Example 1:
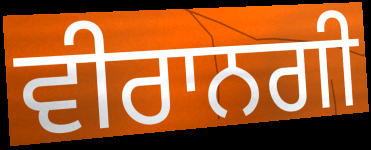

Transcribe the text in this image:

ਵੀਰਾਨਗੀ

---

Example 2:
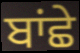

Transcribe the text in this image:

ਬਾਂਛੇ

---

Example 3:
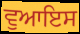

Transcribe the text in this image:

ਵੁਆਇਸ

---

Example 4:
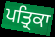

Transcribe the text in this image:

ਪਤ੍ਰਿਕਾ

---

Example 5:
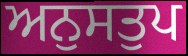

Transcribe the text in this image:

ਅਨੁਸਤੁਪ